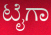
ಟೈಗಾ